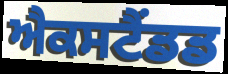
ਐਕਸਟੈਂਡਡ